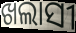
ଖଲାସୀ